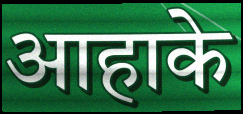
आहाके